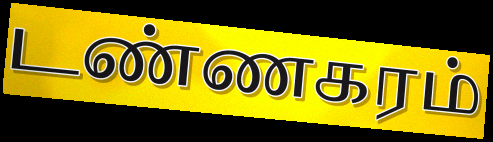
டண்ணகரம்